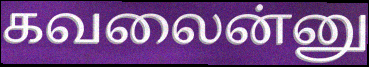
கவலைன்னு